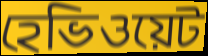
হেভিওয়েট